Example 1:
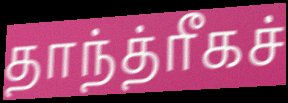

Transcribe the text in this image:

தாந்த்ரீகச்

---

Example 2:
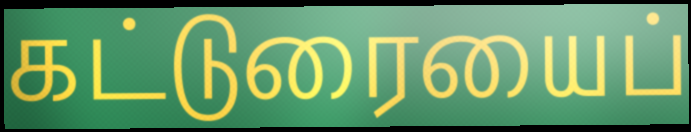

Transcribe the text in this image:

கட்டுரையைப்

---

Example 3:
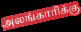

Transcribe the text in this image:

அலங்காரிக்கு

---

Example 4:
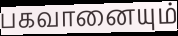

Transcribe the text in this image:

பகவானையும்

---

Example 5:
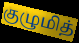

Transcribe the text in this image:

குழுமித்